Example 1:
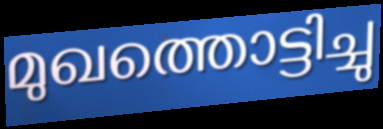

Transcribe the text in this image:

മുഖത്തൊട്ടിച്ചു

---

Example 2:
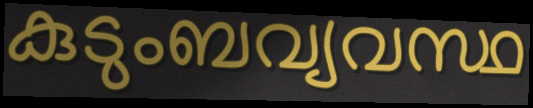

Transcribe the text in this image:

കുടുംബവ്യവസ്ഥ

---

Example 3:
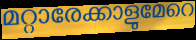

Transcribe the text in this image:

മറ്റാരേക്കാളുമേറെ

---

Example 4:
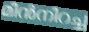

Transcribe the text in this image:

മീൻനിറച്ച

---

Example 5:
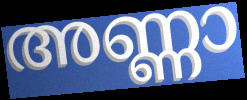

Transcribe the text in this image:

അണ്ണാ